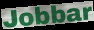
Jobbar